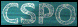
CSPO